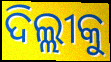
ଦିଲ୍ଲୀକୁ